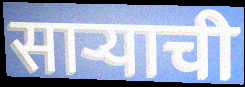
सार्‍याची